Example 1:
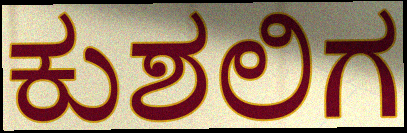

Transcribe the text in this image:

ಕುಶಲಿಗ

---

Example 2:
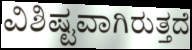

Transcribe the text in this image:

ವಿಶಿಷ್ಟವಾಗಿರುತ್ತದೆ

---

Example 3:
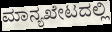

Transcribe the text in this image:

ಮಾನ್ಯಖೇಟದಲ್ಲಿ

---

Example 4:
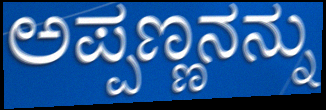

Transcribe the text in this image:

ಅಪ್ಪಣ್ಣನನ್ನು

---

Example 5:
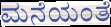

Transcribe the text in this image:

ಮನೆಯಂತೆ